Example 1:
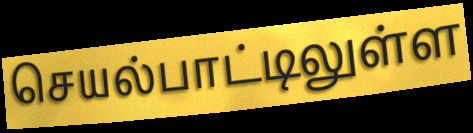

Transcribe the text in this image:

செயல்பாட்டிலுள்ள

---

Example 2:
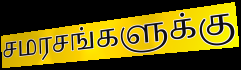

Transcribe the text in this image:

சமரசங்களுக்கு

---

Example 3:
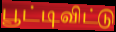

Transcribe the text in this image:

பூட்டிவிட்டு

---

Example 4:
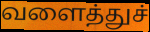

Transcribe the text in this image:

வளைத்துச்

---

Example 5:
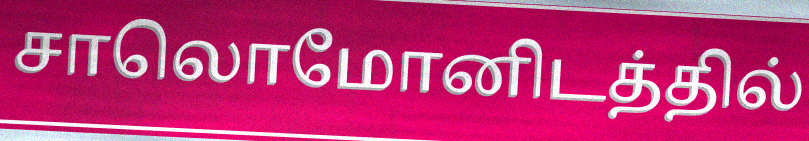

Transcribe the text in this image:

சாலொமோனிடத்தில்